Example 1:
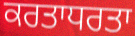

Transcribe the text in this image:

ਕਰਤਾਧਰਤਾ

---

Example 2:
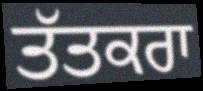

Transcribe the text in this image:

ਤੱਤਕਰਾ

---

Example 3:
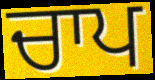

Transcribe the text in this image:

ਚਾਪ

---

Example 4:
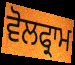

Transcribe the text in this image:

ਵੋਲਫ੍ਰਾਮ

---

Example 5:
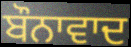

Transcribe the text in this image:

ਬੌਨਾਵਾਦ